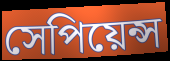
সেপিয়েন্স